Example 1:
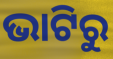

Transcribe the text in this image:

ଭାଟିରୁ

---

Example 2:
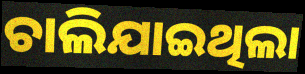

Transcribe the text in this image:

ଚାଲିଯାଇଥିଲା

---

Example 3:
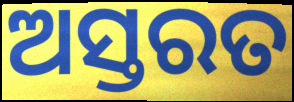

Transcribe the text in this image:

ଅସ୍ତରତ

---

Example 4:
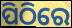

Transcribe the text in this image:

ପିଠିରେ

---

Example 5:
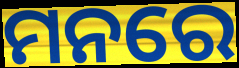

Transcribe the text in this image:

ମନରେ